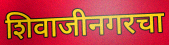
शिवाजीनगरचा